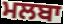
ਮਲਬਾ